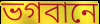
ভগবানে